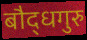
बौद्धगुरु